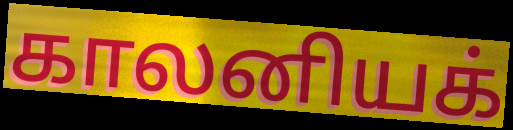
காலனியக்